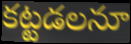
కట్టడలనూ